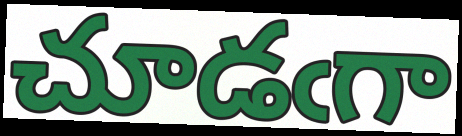
చూడఁగా